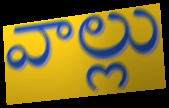
వాల్లు